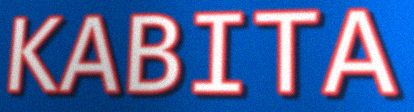
KABITA